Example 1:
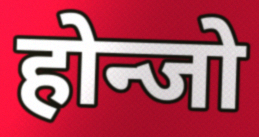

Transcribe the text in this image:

होन्जो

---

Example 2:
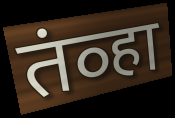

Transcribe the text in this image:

तंव्हा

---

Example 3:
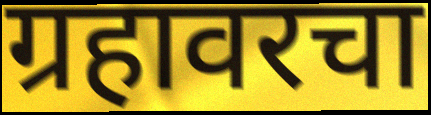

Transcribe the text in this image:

ग्रहावरचा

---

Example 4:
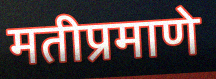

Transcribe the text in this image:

मतीप्रमाणे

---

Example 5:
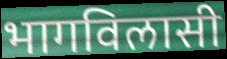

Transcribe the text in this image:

भागविलासी